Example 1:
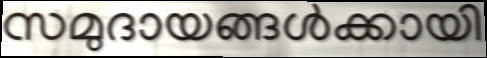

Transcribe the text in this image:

സമുദായങ്ങൾക്കായി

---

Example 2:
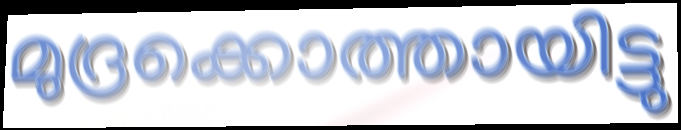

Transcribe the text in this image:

മുദ്രക്കൊത്തായിട്ടു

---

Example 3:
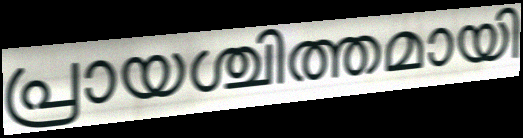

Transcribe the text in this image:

പ്രായശ്ചിത്തമായി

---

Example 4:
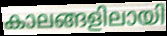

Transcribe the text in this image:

കാലങ്ങളിലായി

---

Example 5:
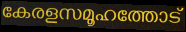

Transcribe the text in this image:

കേരളസമൂഹത്തോട്